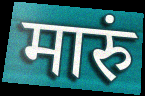
मारुं